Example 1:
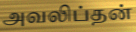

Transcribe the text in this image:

அவலிப்தன்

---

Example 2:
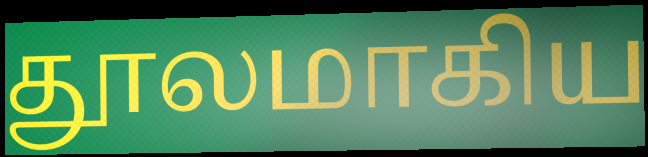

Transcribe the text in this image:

தூலமாகிய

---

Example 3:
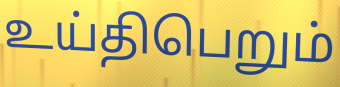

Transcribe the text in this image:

உய்திபெறும்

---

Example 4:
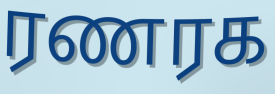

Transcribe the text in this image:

ரணரக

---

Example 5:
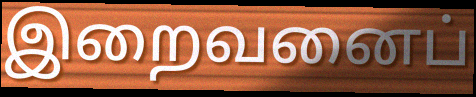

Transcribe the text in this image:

இறைவனைப்